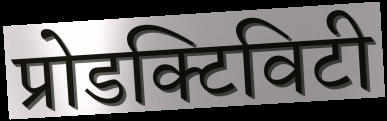
प्रोडक्टिविटी